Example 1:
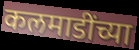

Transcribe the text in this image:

कलमाडींच्या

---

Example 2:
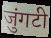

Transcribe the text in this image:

जुंगटी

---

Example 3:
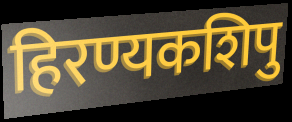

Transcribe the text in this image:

हिरण्यकशिपु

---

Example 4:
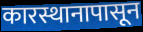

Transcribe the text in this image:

कारस्थानापासून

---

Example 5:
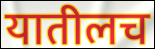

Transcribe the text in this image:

यातीलच